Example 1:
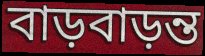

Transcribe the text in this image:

বাড়বাড়ন্ত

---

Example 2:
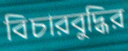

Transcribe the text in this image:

বিচারবুদ্ধির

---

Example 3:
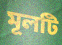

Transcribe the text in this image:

মূলটি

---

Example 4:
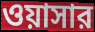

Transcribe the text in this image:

ওয়াসার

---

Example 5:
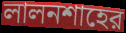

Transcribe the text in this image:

লালনশাহের